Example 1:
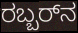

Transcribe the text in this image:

ರಬ್ಬರ್‌ನ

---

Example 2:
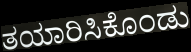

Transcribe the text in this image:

ತಯಾರಿಸಿಕೊಂಡು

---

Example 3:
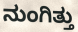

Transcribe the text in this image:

ನುಂಗಿತ್ತು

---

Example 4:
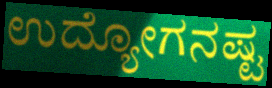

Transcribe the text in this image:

ಉದ್ಯೋಗನಷ್ಟ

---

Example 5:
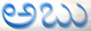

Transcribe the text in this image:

ಅಬು